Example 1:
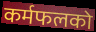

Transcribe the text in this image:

कर्मफलको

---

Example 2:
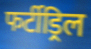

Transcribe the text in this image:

फर्टीड्रिल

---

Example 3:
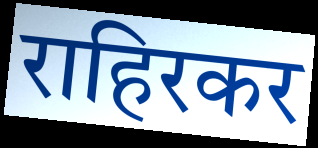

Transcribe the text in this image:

राहिरकर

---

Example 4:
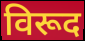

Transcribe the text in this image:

विरूद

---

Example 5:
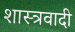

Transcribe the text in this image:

शास्त्रवादी